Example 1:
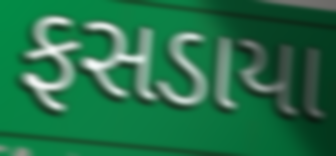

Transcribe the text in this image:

ફસડાયા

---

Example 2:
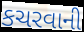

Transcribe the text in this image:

કચરવાની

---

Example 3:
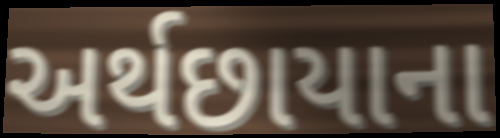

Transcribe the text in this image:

અર્થછાયાના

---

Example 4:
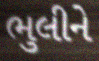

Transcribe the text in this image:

ભુલીને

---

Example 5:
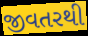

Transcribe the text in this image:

જીવતરથી